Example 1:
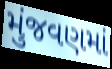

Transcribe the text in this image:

મુંજવણમાં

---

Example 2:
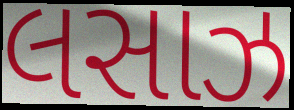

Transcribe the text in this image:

લસાઝ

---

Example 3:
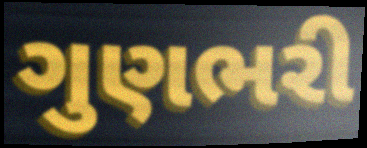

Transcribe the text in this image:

ગુણભરી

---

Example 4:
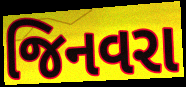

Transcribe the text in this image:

જિનવરા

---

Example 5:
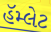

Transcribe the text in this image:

હૅમ્લેટ